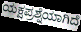
ಯಕ್ಷಪ್ರಶ್ನೆಯಾಗಿದೆ